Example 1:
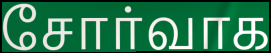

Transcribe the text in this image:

சோர்வாக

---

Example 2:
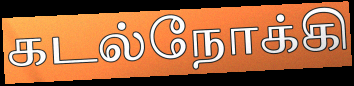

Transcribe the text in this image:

கடல்நோக்கி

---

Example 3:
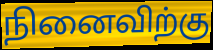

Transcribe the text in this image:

நினைவிற்கு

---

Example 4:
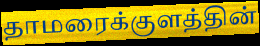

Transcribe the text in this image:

தாமரைக்குளத்தின்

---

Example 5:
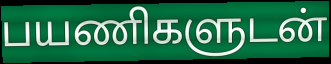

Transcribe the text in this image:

பயணிகளுடன்